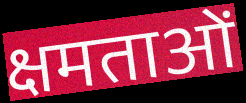
क्षमताओं